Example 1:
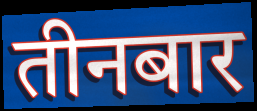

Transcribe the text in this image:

तीनबार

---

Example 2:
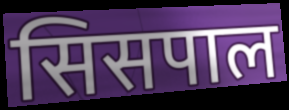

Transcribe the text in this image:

सिसपाल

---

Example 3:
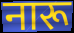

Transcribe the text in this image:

नारू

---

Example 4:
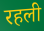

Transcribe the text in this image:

रहली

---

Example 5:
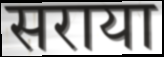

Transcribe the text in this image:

सराया